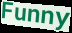
Funny